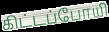
கிட்டப்போயி